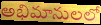
అభిమానులలో